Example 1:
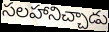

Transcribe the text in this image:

సలహానిచ్చాడు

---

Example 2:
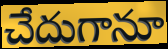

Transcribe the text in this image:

చేదుగానూ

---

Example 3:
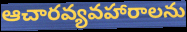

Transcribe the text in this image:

ఆచారవ్యవహారాలను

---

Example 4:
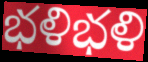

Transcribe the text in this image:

భళిభళి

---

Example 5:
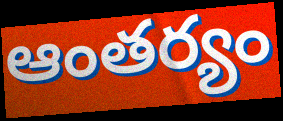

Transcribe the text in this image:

ఆంతర్యం